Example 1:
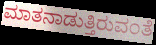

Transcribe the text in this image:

ಮಾತನಾಡುತ್ತಿರುವಂತೆ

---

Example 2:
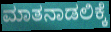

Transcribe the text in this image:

ಮಾತನಾಡಲಿಕ್ಕೆ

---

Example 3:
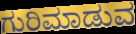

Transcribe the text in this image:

ಗುರಿಮಾಡುವ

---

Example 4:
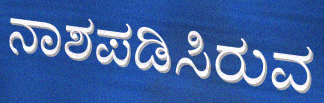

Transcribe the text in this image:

ನಾಶಪಡಿಸಿರುವ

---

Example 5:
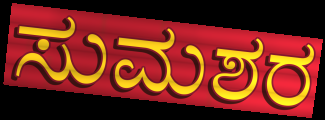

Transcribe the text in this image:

ಸುಮಶರ